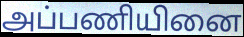
அப்பணியினை